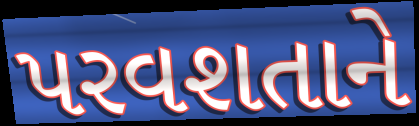
પરવશતાને